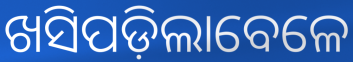
ଖସିପଡ଼ିଲାବେଳେ